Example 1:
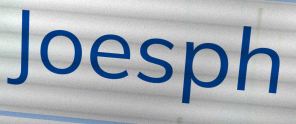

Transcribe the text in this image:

Joesph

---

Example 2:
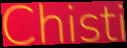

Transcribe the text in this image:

Chisti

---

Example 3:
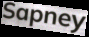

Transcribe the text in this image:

Sapney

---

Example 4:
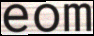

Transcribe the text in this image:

eom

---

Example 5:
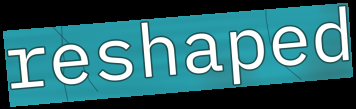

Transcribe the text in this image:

reshaped